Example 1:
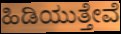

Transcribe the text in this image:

ಹಿಡಿಯುತ್ತೇವೆ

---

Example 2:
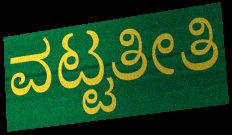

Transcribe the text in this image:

ವಟ್ಟತೀತಿ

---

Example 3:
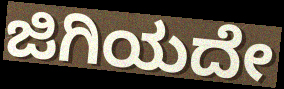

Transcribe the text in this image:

ಜಿಗಿಯದೇ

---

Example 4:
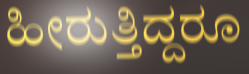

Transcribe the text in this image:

ಹೀರುತ್ತಿದ್ದರೂ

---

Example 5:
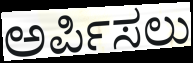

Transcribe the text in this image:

ಅರ್ಪಿಸಲು